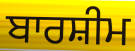
ਬਾਰਸ਼ੀਮ